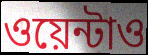
ওয়েন্টাও